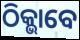
ଠିକ୍ଭାବେ